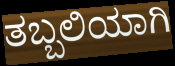
ತಬ್ಬಲಿಯಾಗಿ